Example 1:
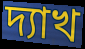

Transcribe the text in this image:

দ্যাখ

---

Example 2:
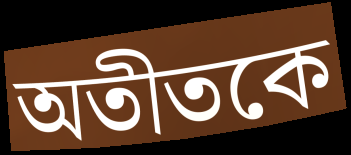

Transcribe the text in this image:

অতীতকে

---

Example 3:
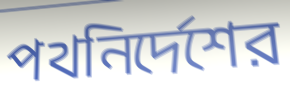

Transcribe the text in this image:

পথনির্দেশের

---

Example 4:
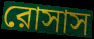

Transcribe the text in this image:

রোসাস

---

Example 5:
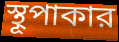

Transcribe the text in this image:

স্থূপাকার